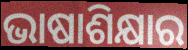
ଭାଷାଶିକ୍ଷାର